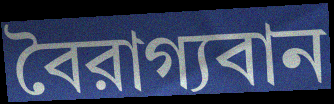
বৈরাগ্যবান